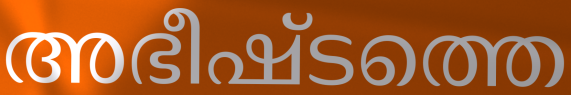
അഭീഷ്ടത്തെ